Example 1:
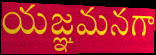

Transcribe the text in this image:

యజ్ఞమనగా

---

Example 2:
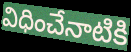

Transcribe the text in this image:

విధించేనాటికి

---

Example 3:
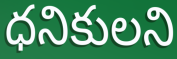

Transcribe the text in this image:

ధనికులని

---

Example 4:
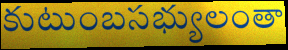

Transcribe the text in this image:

కుటుంబసభ్యులంతా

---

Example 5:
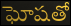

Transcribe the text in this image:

ఘోషతో